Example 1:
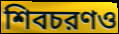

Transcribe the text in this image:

শিবচরণও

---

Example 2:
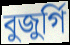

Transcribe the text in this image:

বুজুর্গি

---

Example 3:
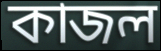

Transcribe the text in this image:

কাজল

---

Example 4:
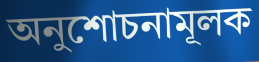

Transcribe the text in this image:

অনুশোচনামূলক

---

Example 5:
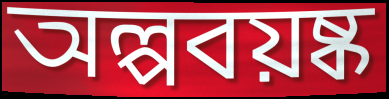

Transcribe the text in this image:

অল্পবয়ষ্ক